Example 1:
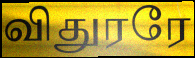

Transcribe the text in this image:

விதுரரே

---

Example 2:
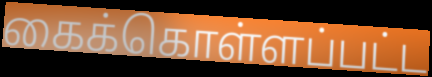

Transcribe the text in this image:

கைக்கொள்ளப்பட்ட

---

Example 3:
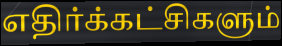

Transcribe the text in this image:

எதிர்க்கட்சிகளும்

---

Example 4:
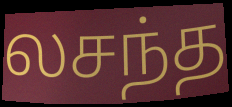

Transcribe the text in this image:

லசந்த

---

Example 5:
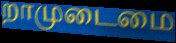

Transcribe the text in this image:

றாமுடைமை